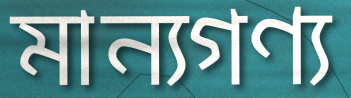
মান্যগণ্য